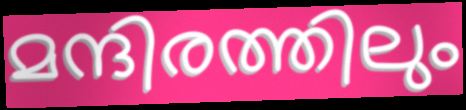
മന്ദിരത്തിലും